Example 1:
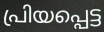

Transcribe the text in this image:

പ്രിയപ്പെട്ട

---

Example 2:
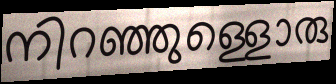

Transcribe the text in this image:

നിറഞ്ഞുള്ളൊരു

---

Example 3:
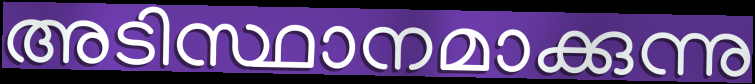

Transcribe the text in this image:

അടിസ്ഥാനമാക്കുന്നു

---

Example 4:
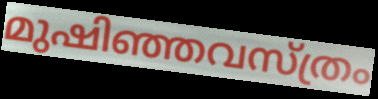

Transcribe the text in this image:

മുഷിഞ്ഞവസ്ത്രം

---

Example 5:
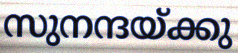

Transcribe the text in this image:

സുനന്ദയ്ക്കു